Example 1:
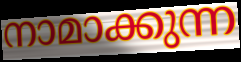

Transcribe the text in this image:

നാമാക്കുന്ന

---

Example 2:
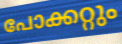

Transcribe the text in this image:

പോക്കറ്റും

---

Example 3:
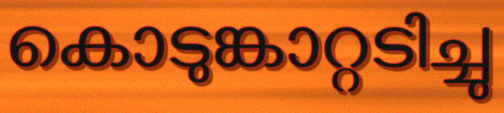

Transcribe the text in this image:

കൊടുങ്കാറ്റടിച്ചു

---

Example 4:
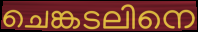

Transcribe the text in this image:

ചെങ്കടലിനെ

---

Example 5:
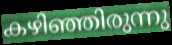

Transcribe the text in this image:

കഴിഞ്ഞിരുന്നു